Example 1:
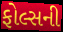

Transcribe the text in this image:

ફોલ્સની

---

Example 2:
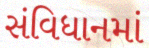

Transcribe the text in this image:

સંવિધાનમાં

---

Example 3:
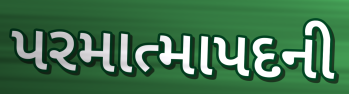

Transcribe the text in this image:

પરમાત્માપદની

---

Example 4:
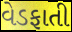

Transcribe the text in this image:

વેડફાતી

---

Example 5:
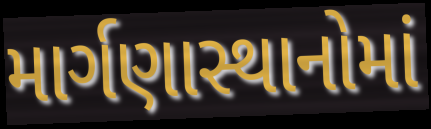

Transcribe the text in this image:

માર્ગણાસ્થાનોમાં